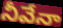
నీవేనా